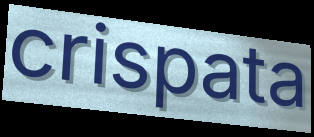
crispata